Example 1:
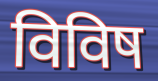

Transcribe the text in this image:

विविष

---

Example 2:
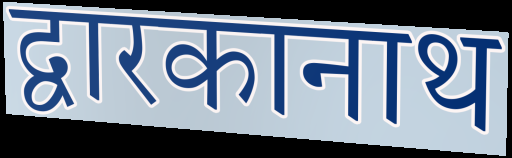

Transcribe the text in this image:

द्वारकानाथ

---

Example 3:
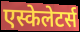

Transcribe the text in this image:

एस्केलेटर्स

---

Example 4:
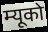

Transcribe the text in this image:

म्यूको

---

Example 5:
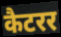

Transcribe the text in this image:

कैटरर